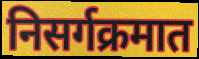
निसर्गक्रमात